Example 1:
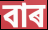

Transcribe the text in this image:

বাৰ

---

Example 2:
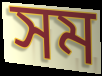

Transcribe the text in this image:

সম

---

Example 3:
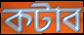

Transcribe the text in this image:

কটাব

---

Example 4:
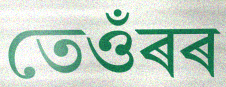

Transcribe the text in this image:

তেওঁৰৰ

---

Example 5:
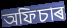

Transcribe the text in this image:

অফিচাৰ